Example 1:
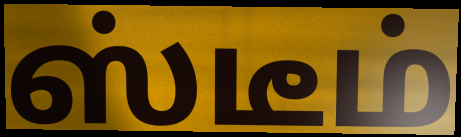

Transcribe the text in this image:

ஸ்டீம்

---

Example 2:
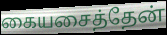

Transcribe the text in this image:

கையசைத்தேன்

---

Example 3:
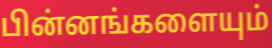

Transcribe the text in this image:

பின்னங்களையும்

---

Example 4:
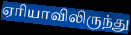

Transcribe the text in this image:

ஏரியாவிலிருந்து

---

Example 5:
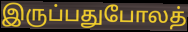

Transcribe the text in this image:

இருப்பதுபோலத்